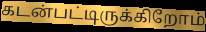
கடன்பட்டிருக்கிறோம்